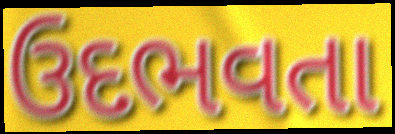
ઉદભવતા